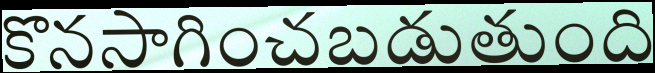
కొనసాగించబడుతుంది